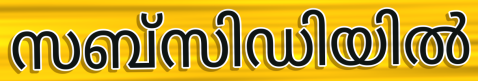
സബ്സിഡിയിൽ